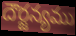
దౌర్జన్యము